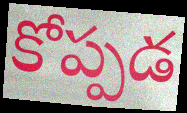
కోప్పడ